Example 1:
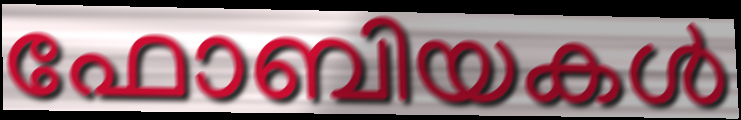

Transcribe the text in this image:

ഫോബിയകൾ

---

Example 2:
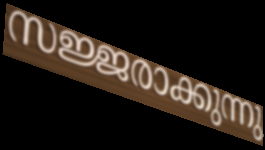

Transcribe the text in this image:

സജ്ജരാക്കുന്നു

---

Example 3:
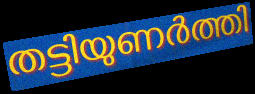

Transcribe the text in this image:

തട്ടിയുണർത്തി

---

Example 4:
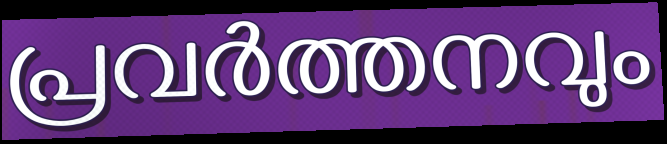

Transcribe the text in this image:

പ്രവർത്തനവും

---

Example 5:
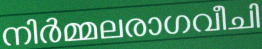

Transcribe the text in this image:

നിർമ്മലരാഗവീചി